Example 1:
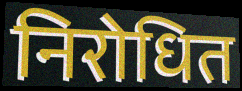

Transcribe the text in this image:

निरोधित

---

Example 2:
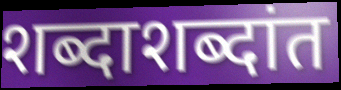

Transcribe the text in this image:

शब्दाशब्दांत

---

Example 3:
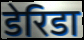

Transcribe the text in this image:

डेरिडा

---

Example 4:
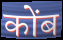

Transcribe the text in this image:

कोंब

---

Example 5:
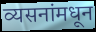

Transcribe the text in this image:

व्यसनांमधून